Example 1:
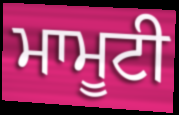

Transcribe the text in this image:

ਮਾਮੂਟੀ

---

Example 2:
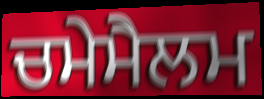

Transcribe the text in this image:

ਚਮੇਮੈਲਮ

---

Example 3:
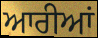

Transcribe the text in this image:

ਆਰੀਆਂ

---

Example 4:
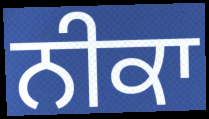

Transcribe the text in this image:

ਨੀਕਾ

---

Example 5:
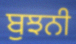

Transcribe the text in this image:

ਬੁਝਨੀ